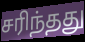
சரிந்தது